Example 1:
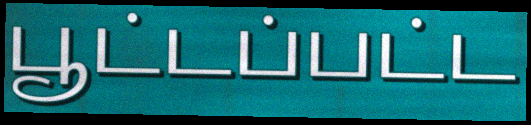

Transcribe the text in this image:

பூட்டப்பட்ட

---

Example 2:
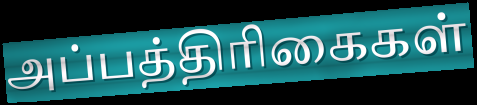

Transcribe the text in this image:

அப்பத்திரிகைகள்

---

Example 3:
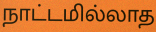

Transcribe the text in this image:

நாட்டமில்லாத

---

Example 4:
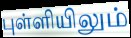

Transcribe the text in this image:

புள்ளியிலும்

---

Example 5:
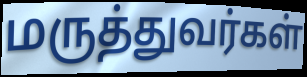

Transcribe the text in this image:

மருத்துவர்கள்